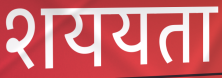
शययता